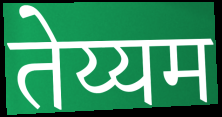
तेय्यम